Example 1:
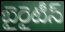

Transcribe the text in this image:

బైరైటీస్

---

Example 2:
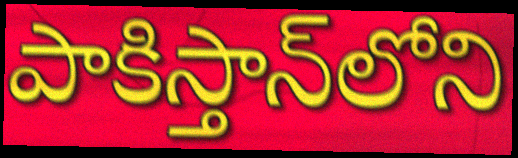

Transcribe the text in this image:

పాకిస్తాన్‌లోని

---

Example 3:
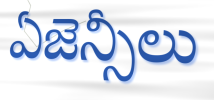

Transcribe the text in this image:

ఏజెన్సీలు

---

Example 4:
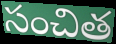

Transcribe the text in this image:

సంచిత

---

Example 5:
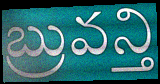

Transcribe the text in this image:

బ్రువన్తి